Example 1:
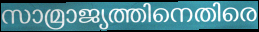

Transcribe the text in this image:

സാമ്രാജ്യത്തിനെതിരെ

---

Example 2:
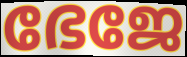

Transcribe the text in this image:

ഭേജേ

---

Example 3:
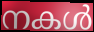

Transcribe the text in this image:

നകൾ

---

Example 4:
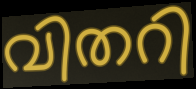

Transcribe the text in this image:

വിതറി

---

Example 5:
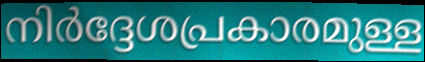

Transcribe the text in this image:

നിർദ്ദേശപ്രകാരമുള്ള